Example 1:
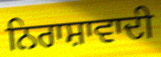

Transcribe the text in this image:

ਨਿਰਾਸ਼ਾਵਾਦੀ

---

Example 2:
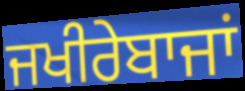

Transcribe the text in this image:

ਜਖੀਰੇਬਾਜਾਂ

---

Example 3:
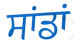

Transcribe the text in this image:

ਸਾਂਡਾਂ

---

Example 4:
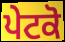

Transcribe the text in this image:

ਪੇਟਕੋ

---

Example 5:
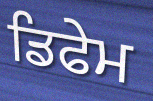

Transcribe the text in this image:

ਡਿਫੇਮ